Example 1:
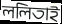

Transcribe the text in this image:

ললিতাই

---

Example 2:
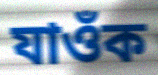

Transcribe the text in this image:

যাওঁক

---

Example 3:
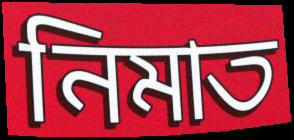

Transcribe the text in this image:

নিমাত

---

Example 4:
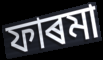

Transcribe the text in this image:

ফাৰমা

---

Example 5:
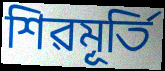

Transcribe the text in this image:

শিৱমূৰ্তি